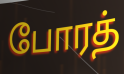
போரத்